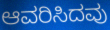
ಆವರಿಸಿದವು